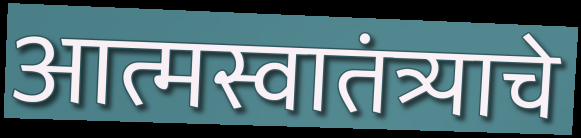
आत्मस्वातंत्र्याचे